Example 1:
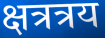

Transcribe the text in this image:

क्षत्रत्रय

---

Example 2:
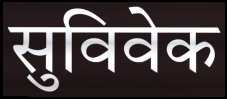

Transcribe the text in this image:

सुविवेक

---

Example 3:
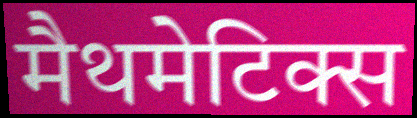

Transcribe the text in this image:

मैथमेटिक्स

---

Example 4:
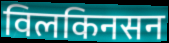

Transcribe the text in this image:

विलकिनसन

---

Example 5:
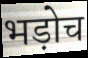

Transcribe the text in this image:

भड़ोच